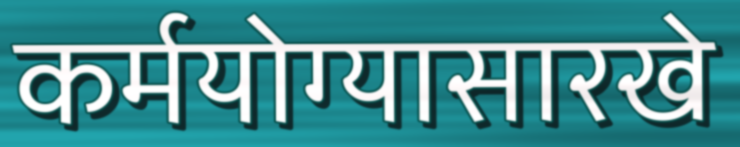
कर्मयोग्यासारखे